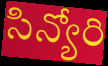
సిన్యోరి